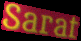
Sarat